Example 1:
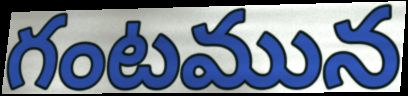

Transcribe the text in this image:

గంటమున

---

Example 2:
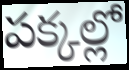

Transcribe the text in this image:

పక్కల్లో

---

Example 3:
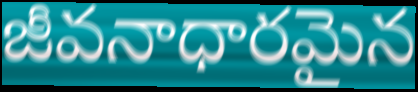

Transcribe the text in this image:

జీవనాధారమైన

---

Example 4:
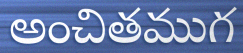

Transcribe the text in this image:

అంచితముగ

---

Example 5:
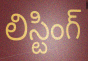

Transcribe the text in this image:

లిస్టింగ్